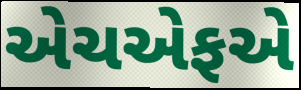
એચએફએ